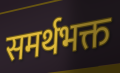
समर्थभक्त